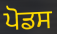
ਪੋਡਸ